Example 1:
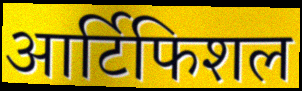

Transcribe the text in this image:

आर्टिफिशल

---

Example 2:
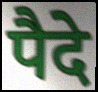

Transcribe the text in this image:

पैदे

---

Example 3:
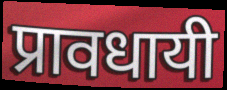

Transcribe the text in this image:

प्रावधायी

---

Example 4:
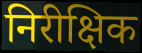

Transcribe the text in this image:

निरीक्षिक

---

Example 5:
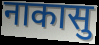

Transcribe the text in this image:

नाकासु